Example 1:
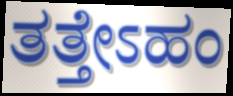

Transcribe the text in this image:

ತತ್ತೇಽಹಂ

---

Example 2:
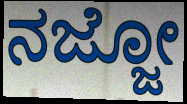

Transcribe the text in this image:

ನಜ್ಜೋ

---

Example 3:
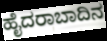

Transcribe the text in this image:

ಹೈದರಾಬಾದಿನ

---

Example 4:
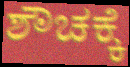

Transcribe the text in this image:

ಶೌಚಕ್ಕೆ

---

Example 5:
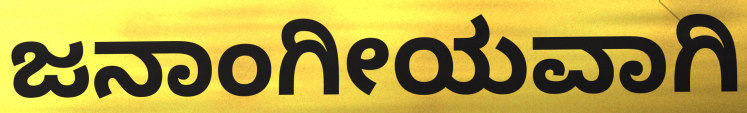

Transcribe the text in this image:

ಜನಾಂಗೀಯವಾಗಿ